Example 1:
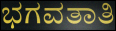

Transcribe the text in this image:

ಭಗವತಾತಿ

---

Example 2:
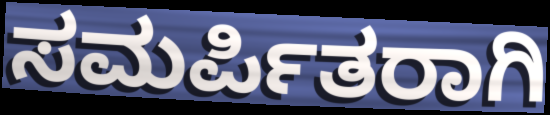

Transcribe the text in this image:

ಸಮರ್ಪಿತರಾಗಿ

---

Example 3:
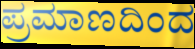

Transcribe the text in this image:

ಪ್ರಮಾಣದಿಂದ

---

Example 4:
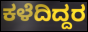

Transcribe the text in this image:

ಕಳೆದಿದ್ದರ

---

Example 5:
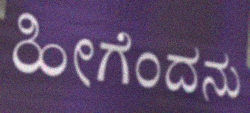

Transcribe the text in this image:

ಹೀಗೆಂದನು